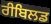
ਰੀਬਿਲਡ